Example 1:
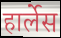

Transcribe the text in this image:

हार्लेस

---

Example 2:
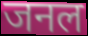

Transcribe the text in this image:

जनल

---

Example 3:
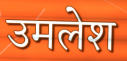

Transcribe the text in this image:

उमलेश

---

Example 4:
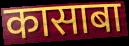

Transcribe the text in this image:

कासाबा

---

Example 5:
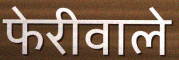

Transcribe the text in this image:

फेरीवाले